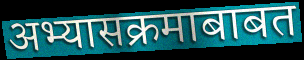
अभ्यासक्रमाबाबत